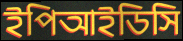
ইপিআইডিসি